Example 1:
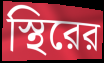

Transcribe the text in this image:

স্থিরের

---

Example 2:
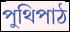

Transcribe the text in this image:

পুথিপাঠ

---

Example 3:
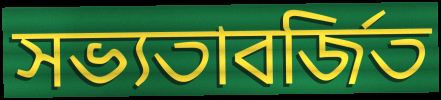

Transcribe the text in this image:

সভ্যতাবর্জিত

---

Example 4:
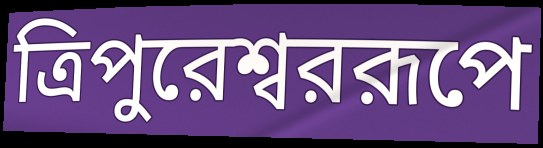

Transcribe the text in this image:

ত্রিপুরেশ্বররূপে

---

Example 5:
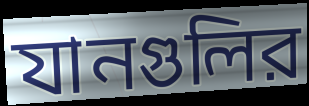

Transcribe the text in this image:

যানগুলির